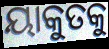
ୟାକୁତକୁ